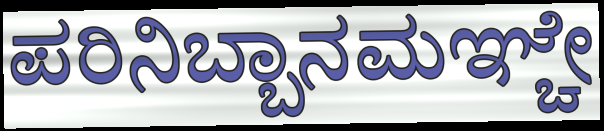
ಪರಿನಿಬ್ಬಾನಮಞ್ಚೇ